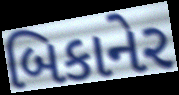
બિકાનેર